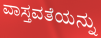
ವಾಸ್ತವತೆಯನ್ನು